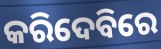
କରିଦେବିରେ